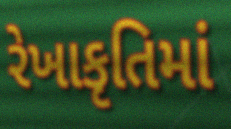
રેખાકૃતિમાં